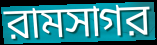
রামসাগর